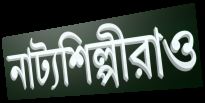
নাট্যশিল্পীরাও